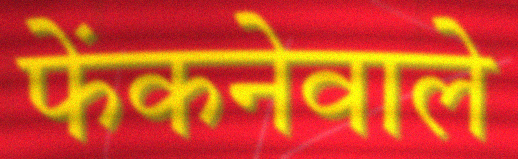
फेंकनेवाले